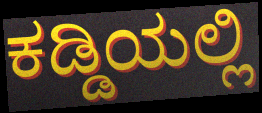
ಕಡ್ಡಿಯಲ್ಲಿ